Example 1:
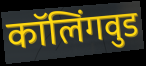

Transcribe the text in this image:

कॉलिंगवुड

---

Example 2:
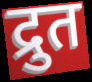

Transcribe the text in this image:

द्रुत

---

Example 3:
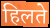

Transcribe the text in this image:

हिलते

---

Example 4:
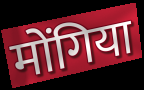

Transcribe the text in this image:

मोंगिया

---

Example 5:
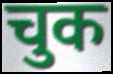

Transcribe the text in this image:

चुक